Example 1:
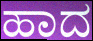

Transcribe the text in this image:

ಹಾದ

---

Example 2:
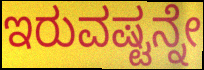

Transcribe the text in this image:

ಇರುವಷ್ಟನ್ನೇ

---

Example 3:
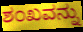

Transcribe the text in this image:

ಶಂಖವನ್ನು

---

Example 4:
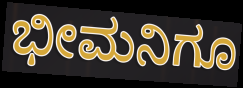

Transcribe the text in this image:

ಭೀಮನಿಗೂ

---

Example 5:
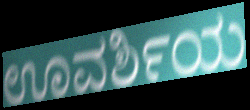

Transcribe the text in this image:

ಊವರ್ಶಿಯ